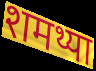
शमथ्या